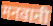
मनवानी